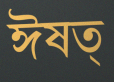
ঈষত্